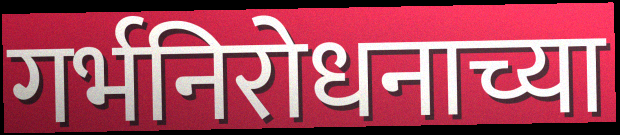
गर्भनिरोधनाच्या